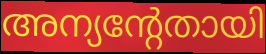
അന്യന്റേതായി